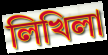
লিখিলা